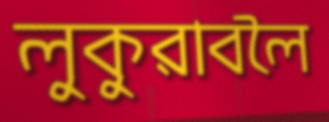
লুকুৱাবলৈ